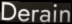
Derain